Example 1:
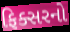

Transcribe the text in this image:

ફિક્સરનો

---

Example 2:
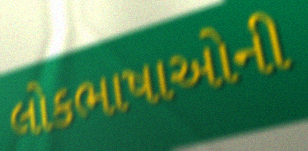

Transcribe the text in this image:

લોકભાષાઓની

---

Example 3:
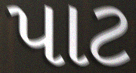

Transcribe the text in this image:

પાટ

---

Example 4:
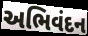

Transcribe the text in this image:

અભિવંદન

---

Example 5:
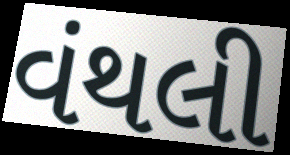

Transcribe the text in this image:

વંથલી